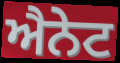
ਐਨੇਟ